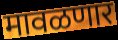
मावळणार